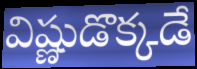
విష్ణుడొక్కడే